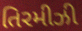
તિરમીઝી